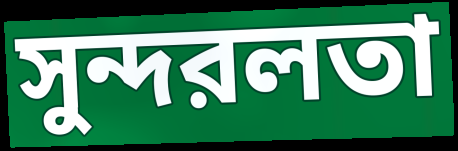
সুন্দরলতা